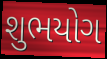
શુભયોગ